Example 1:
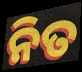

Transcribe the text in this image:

ନିତ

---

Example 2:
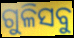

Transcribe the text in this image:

ଗୁଳିସବୁ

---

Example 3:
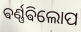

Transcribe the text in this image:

ଵର୍ଣ୍ଣଵିଲୋପ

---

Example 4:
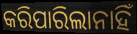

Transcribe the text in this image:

କରିପାରିଲାନାହିଁ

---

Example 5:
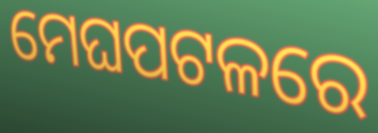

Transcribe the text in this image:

ମେଘପଟଳରେ